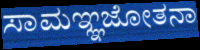
ಸಾಮಞ್ಞಜೋತನಾ